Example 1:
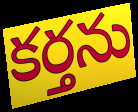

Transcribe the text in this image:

కర్తను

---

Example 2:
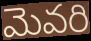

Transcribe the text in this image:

మెవరి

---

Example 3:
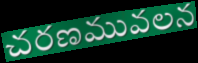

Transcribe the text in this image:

చరణమువలన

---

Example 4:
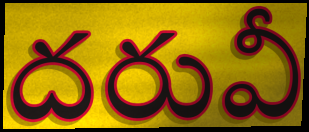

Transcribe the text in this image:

దరువీ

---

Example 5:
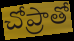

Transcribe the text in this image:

చోప్రాతో